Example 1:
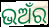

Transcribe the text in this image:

ଭଅଁର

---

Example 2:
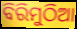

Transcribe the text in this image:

ବିରିମୁଠିଆ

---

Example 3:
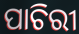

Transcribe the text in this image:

ପାଚିରୀ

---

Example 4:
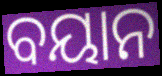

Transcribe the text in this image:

ବୟାନ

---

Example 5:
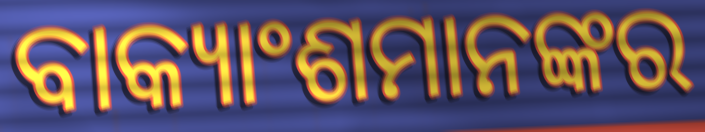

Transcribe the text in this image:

ବାକ୍ୟାଂଶମାନଙ୍କର